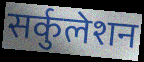
सर्कुलेशन